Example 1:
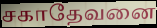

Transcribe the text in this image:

சகாதேவனை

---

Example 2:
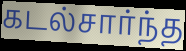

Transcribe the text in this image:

கடல்சார்ந்த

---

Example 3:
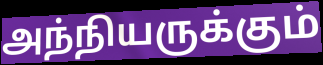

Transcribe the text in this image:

அந்நியருக்கும்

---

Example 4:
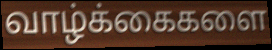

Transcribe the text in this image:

வாழ்க்கைகளை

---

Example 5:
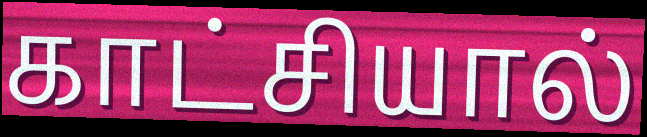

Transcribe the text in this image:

காட்சியால்